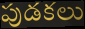
పుడకలు